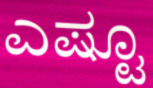
ಎಷ್ಟೂ